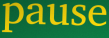
pause